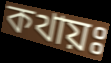
কথায়ঃ